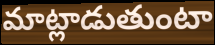
మాట్లాడుతుంటా